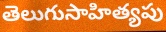
తెలుగుసాహిత్యపు